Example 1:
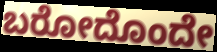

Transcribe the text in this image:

ಬರೋದೊಂದೇ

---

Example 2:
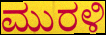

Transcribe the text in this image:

ಮುರಳಿ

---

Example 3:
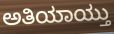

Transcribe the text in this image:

ಅತಿಯಾಯ್ತು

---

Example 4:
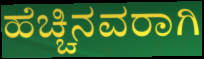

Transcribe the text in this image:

ಹೆಚ್ಚಿನವರಾಗಿ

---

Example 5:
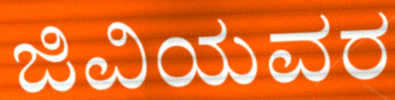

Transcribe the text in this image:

ಜಿವಿಯವರ